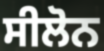
ਸੀਲੋਨ